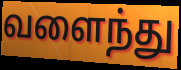
வளைந்து